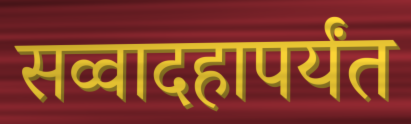
सव्वादहापर्यंत